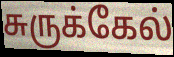
சுருக்கேல்